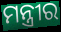
ମନ୍ତ୍ରୀର